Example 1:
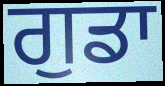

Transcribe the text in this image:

ਗੁਡਾ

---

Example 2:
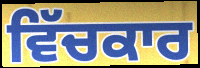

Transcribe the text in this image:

ਵਿੱਚਕਾਰ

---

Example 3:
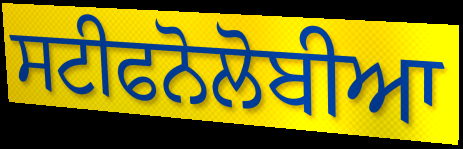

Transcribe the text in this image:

ਸਟੀਫਨੋਲੋਬੀਆ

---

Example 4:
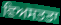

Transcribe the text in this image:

ਵਿਅਸਤਤਾ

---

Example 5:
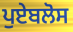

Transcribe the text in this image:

ਪੁਏਬਲੋਸ